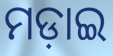
ମଡ଼ାଇ